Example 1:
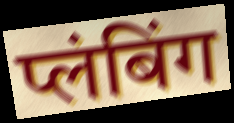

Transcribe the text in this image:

प्लंबिंग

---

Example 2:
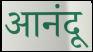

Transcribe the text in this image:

आनंदू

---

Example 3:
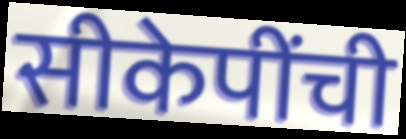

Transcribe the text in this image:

सीकेपींची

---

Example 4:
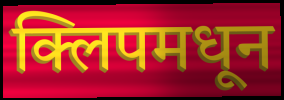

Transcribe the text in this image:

क्लिपमधून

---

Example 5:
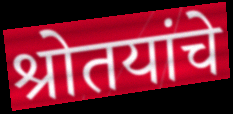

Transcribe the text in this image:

श्रोतयांचे